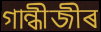
গান্ধীজীৰ